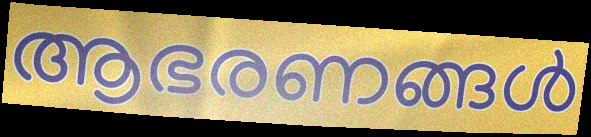
ആഭരണങ്ങൾ